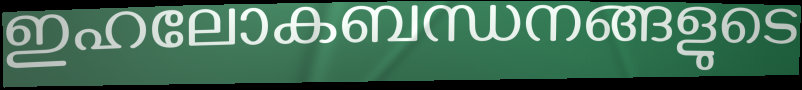
ഇഹലോകബന്ധനങ്ങളുടെ